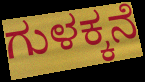
ಗುಳಕ್ಕನೆ